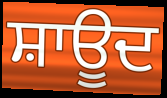
ਸ਼ਾਊਦ